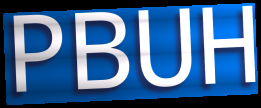
PBUH